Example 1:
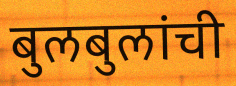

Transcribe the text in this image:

बुलबुलांची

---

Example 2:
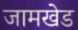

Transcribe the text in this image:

जामखेड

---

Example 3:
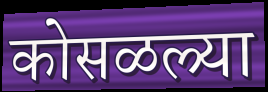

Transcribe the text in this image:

कोसळल्या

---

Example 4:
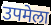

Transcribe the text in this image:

उपमेला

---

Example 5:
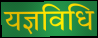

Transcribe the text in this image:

यज्ञविधि